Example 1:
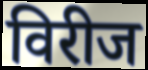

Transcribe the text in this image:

विरीज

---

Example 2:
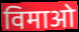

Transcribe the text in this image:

विमाओ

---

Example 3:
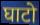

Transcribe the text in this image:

घाटो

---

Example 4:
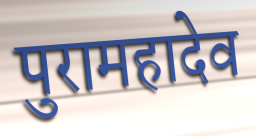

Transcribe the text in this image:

पुरामहादेव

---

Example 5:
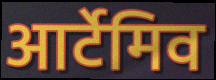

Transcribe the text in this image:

आर्टेमिव